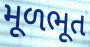
મૂળભૂત